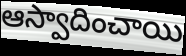
ఆస్వాదించాయి